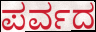
ಪರ್ವದ